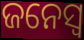
ଜନେସ୍ୱ